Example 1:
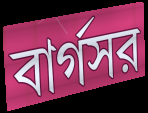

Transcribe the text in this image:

বার্গসর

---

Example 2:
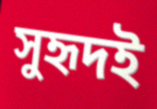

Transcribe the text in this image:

সুহৃদই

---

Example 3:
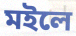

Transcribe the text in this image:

মইলে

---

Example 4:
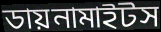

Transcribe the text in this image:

ডায়নামাইটস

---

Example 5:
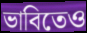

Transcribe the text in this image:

ভাবিতেও